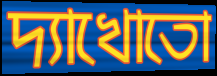
দ্যাখোতো